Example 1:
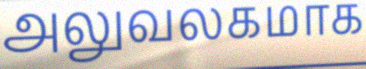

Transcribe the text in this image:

அலுவலகமாக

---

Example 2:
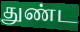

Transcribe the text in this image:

துண்ட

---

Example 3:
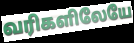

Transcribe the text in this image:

வரிகளிலேயே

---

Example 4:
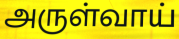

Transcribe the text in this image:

அருள்வாய்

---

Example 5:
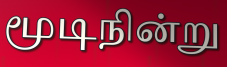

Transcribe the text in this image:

மூடிநின்று